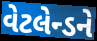
વેટલેન્ડને